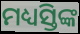
ମଧ୍ୟସ୍ତିଙ୍କ